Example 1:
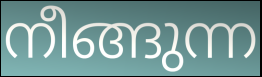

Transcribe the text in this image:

നീങ്ങുന്ന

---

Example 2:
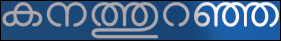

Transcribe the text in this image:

കനത്തുറഞ്ഞ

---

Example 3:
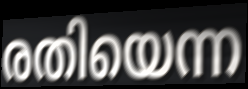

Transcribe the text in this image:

രതിയെന്ന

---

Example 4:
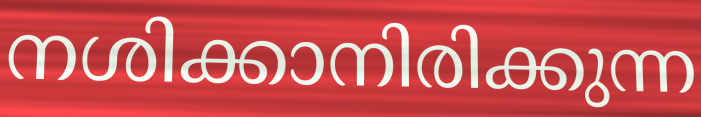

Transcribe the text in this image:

നശിക്കാനിരിക്കുന്ന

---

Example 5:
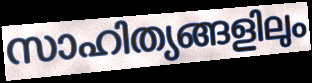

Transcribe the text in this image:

സാഹിത്യങ്ങളിലും